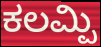
ಕಲಮ್ಪಿ